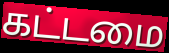
கட்டமை